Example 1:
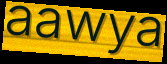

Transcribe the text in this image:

aawya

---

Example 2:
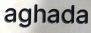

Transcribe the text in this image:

aghada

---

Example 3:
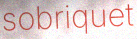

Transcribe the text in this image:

sobriquet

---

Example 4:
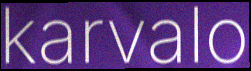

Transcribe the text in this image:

karvalo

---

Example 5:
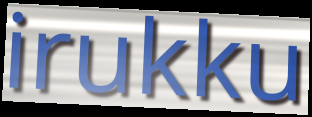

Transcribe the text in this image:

irukku